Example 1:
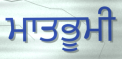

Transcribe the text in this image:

ਮਾਤਭੂਮੀ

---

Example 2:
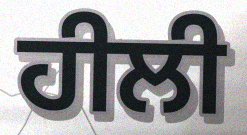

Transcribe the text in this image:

ਹੀਲੀ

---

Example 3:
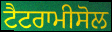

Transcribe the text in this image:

ਟੈਟਰਾਮੀਸੋਲ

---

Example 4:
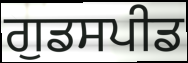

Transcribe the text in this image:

ਗੁਡਸਪੀਡ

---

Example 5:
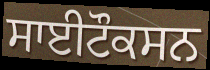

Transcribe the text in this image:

ਸਾਈਟੌਕਸਨ